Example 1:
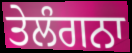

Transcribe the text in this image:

ਤੇਲੰਗਨਾ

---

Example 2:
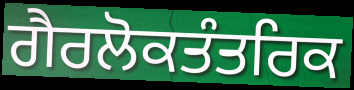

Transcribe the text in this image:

ਗੈਰਲੋਕਤੰਤਰਿਕ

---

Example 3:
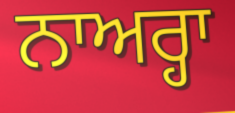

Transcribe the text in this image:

ਨਾਅਰ੍ਹਾ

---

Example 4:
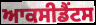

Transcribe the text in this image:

ਆਕਸੀਡੈਂਟਸ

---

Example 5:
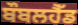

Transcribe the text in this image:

ਬੌਬਲਹੈੱਡ